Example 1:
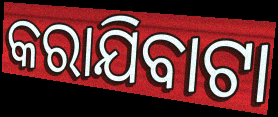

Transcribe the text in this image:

କରାଯିବାଟା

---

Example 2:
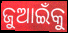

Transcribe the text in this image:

ଜୁଆଇଁକୁ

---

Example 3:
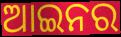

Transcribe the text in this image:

ଆଇନର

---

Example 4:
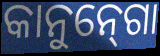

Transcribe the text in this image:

କାନୁନ୍‍ଗୋ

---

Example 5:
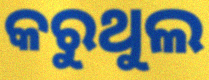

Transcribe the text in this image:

କରୁଥୁଲ